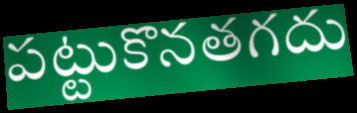
పట్టుకొనతగదు